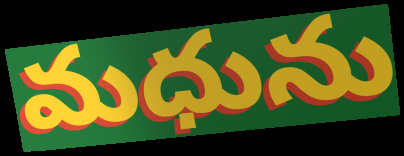
మధును